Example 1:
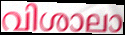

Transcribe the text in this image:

വിശാലാ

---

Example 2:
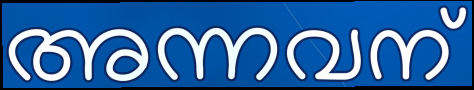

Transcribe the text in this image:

അന്നവന്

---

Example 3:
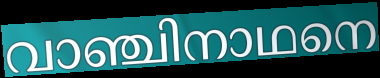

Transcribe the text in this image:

വാഞ്ചിനാഥനെ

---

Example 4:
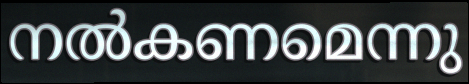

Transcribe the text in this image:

നൽകണമെന്നു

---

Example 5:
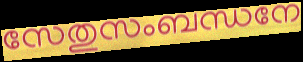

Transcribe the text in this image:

സേതുസംബന്ധനേ